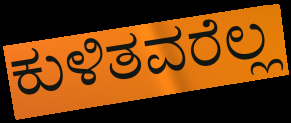
ಕುಳಿತವರೆಲ್ಲ